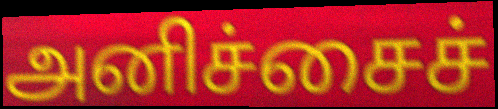
அனிச்சைச்